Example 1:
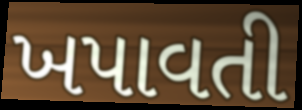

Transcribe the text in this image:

ખપાવતી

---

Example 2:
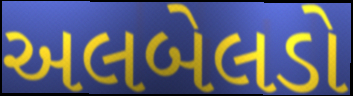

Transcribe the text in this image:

અલબેલડો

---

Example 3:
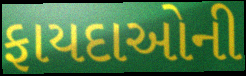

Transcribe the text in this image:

ફાયદાઓની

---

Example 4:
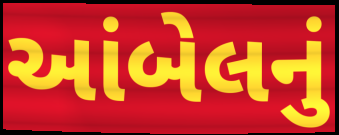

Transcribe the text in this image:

આંબેલનું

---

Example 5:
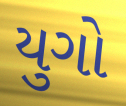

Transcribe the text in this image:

યુગો